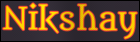
Nikshay